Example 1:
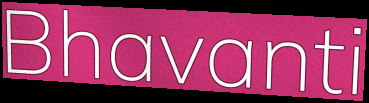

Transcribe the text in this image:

Bhavanti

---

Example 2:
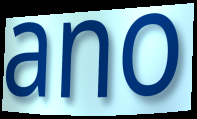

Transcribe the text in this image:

ano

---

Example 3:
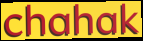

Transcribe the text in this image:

chahak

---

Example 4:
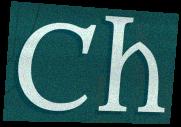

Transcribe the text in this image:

Ch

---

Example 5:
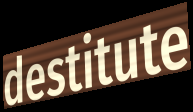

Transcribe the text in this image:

destitute